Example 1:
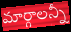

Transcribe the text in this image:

మార్గాలన్నీ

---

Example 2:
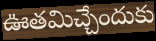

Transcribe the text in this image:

ఊతమిచ్చేందుకు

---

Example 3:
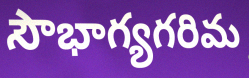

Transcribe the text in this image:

సౌభాగ్యగరిమ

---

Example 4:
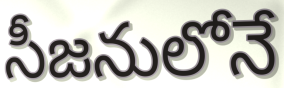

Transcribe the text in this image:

సీజనులోనే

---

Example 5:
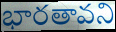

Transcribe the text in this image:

భారతావని